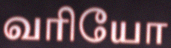
வரியோ